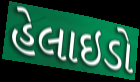
હેલાઇડો